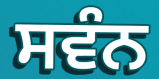
ਸਵੰਨ